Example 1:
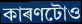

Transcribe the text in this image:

কাৰণটোও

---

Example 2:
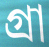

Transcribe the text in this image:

গ্ৰা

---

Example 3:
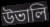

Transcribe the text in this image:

উভালি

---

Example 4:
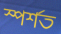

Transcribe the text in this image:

স্পৰ্শত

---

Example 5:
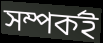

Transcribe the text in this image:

সম্পৰ্কই